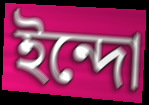
ইন্দো